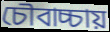
চৌবাচ্চায়